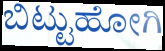
ಬಿಟ್ಟುಹೋಗಿ